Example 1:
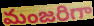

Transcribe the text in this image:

మంజరిగా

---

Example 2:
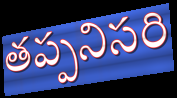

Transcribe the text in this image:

తప్పనిసరి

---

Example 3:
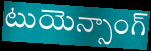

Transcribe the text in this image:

టుయెన్సాంగ్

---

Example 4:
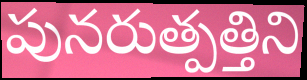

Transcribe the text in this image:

పునరుత్పత్తిని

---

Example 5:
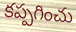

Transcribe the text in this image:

కప్పగించు